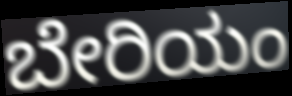
ಬೇರಿಯಂ